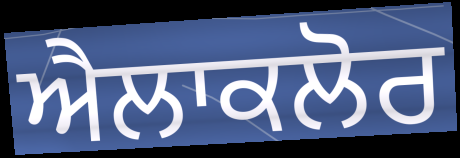
ਐਲਾਕਲੋਰ